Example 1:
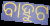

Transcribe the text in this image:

ବାହୁଟ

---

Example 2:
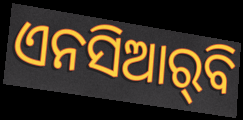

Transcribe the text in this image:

ଏନସିଆର୍‌ବି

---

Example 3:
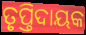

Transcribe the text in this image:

ତୃପ୍ତିଦାୟକ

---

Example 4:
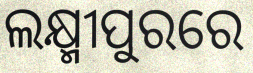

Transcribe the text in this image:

ଲକ୍ଷ୍ମୀପୁରରେ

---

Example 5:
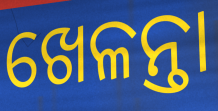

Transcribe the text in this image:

ଖେଳନ୍ତା